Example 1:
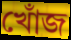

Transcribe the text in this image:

খোঁজ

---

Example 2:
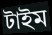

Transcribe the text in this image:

টাইম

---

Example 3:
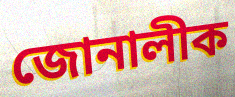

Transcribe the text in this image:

জোনালীক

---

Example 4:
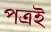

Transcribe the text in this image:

পত্ৰই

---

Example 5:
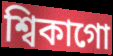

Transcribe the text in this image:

শ্বিকাগো